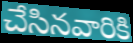
చేసినవారికి